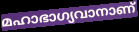
മഹാഭാഗ്യവാനാണ്